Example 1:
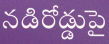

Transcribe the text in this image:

నడిరోడ్డుపై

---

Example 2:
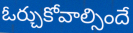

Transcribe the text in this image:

ఓర్చుకోవాల్సిందే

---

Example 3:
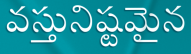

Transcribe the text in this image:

వస్తునిష్టమైన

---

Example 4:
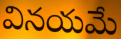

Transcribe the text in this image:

వినయమే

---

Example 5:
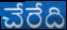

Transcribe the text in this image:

చేరేది